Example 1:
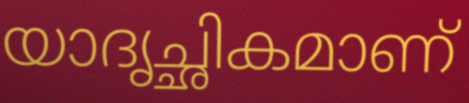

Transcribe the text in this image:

യാദൃച്ഛികമാണ്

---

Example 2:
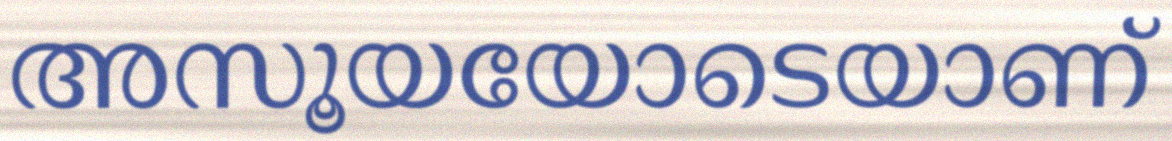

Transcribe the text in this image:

അസൂയയോടെയാണ്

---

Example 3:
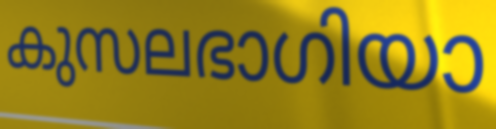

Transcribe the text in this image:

കുസലഭാഗിയാ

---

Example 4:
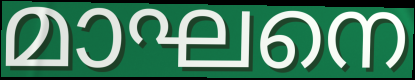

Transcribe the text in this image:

മാഘനെ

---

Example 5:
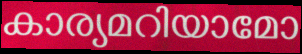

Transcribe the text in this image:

കാര്യമറിയാമോ